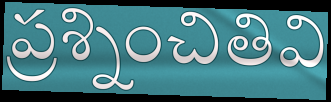
ప్రశ్నించితివి